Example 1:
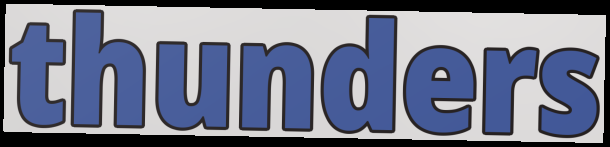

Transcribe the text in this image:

thunders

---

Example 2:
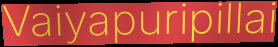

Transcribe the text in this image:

Vaiyapuripillai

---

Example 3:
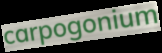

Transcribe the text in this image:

carpogonium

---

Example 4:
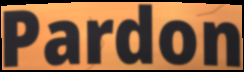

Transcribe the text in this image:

Pardon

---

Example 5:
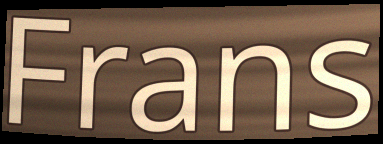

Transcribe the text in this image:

Frans